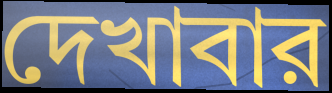
দেখাবার